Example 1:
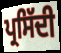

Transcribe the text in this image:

ਪ੍ਰਸਿੱਦੀ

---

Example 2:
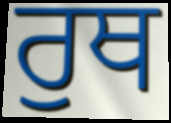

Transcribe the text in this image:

ਰੁਥ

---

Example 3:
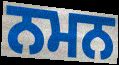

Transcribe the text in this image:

ਨਮਨ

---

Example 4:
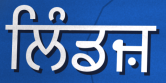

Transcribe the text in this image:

ਲਿੰਡਜ਼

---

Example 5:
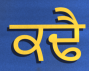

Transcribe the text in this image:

ਕਢੈ